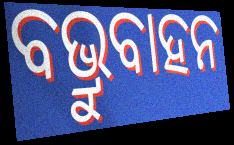
ବଭ୍ରୁବାହନ